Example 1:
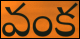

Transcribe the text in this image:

వంక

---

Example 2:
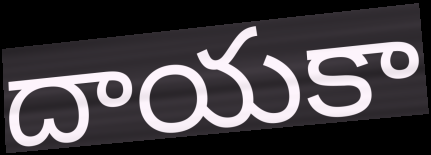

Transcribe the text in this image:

దాయకా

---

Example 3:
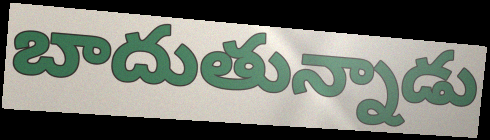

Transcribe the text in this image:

బాదుతున్నాడు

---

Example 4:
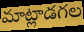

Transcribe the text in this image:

మాట్లాడగల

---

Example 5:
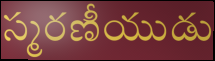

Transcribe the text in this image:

స్మరణీయుడు